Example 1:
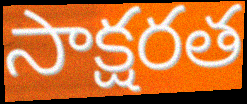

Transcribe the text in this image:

సాక్షరత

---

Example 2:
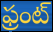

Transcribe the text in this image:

ఫ్రంట్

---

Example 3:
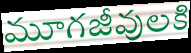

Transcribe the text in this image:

మూగజీవులకి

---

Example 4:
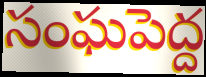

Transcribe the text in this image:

సంఘపెద్ద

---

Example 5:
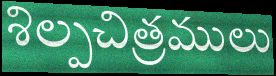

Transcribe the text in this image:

శిల్పచిత్రములు